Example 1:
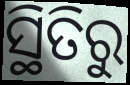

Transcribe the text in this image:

ସ୍ଥିତିରୁ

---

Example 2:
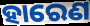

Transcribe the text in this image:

ହାରେଣ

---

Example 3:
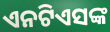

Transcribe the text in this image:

ଏନଟିଏସଙ୍କ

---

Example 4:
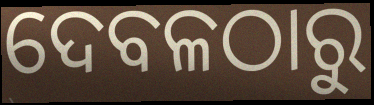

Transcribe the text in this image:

ଦେବଳଠାରୁ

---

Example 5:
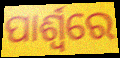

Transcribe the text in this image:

ପାର୍ଶ୍ୱରେ